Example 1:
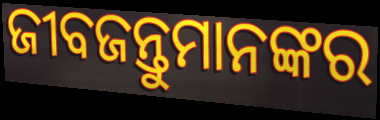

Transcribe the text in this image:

ଜୀବଜନ୍ତୁମାନଙ୍କର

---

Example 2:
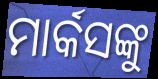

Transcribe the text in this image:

ମାର୍କସଙ୍କୁ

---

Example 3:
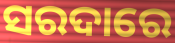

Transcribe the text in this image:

ସରଦାରେ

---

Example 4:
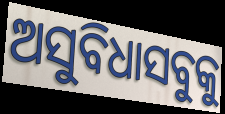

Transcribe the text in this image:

ଅସୁବିଧାସବୁକୁ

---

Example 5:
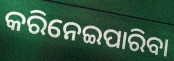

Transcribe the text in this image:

କରିନେଇପାରିବା